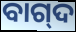
ବାଗ୍‌ଦ